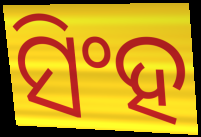
ସିଂହ